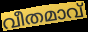
വീതമാവ്